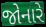
જોનારે